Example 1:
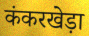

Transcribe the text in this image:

कंकरखेड़ा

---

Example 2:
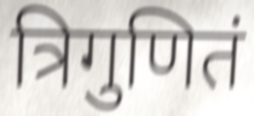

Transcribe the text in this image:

त्रिगुणितं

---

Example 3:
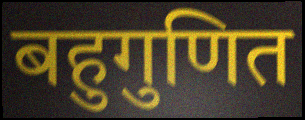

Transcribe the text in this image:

बहुगुणित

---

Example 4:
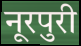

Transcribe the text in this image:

नूरपुरी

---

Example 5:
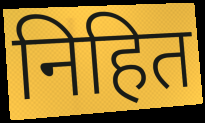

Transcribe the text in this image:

निहित